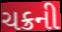
ચક્રની